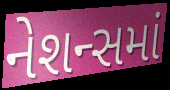
નેશન્સમાં